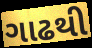
ગાઢથી